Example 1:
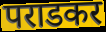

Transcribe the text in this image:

पराडकर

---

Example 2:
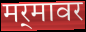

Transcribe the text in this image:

मर्मावर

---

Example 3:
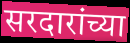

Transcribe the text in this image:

सरदारांच्या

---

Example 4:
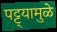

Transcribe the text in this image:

पट्ट्यामुळे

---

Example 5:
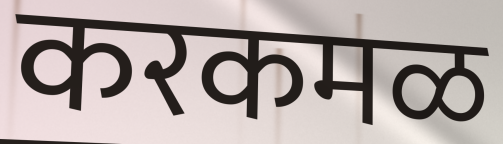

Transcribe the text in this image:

करकमळ